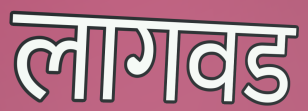
लागवड